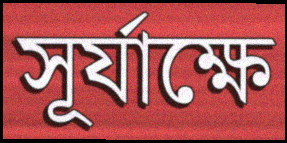
সূর্যাক্ষে